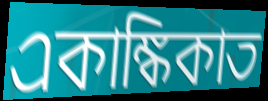
একাঙ্কিকাত